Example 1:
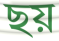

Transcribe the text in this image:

ছয়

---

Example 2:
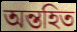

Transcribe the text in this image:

অন্তহিত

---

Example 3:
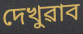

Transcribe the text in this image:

দেখুৱাব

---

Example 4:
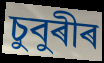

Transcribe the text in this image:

চুবুৰীৰ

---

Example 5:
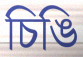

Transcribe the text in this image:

চিঙি